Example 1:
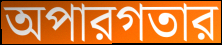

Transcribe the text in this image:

অপারগতার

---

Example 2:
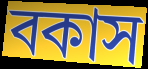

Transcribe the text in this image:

বকাস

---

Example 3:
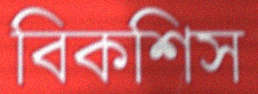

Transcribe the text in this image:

বিকশিস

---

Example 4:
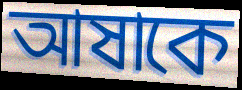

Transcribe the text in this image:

আষাকে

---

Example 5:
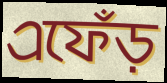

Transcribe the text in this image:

এফেঁড়